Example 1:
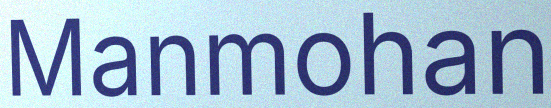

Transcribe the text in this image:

Manmohan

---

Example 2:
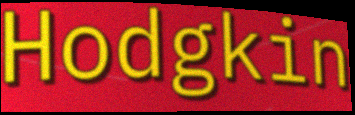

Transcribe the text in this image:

Hodgkin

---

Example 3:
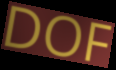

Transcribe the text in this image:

DOF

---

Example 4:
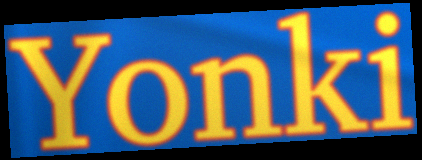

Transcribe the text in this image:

Yonki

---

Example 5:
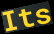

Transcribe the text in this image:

Its